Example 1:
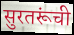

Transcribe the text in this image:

सुरतरूंची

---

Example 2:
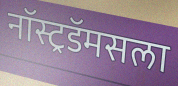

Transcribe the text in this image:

नॉस्ट्रडॅमसला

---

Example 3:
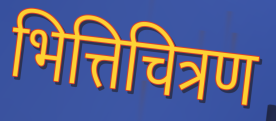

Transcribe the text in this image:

भित्तिचित्रण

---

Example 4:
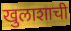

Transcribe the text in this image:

खुलाशाची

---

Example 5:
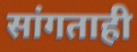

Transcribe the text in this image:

सांगताही